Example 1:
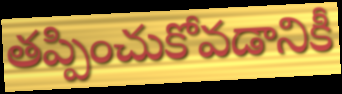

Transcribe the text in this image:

తప్పించుకోవడానికీ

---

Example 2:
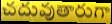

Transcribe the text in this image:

చదువుతారుగా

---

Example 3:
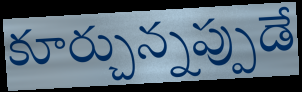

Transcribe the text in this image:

కూర్చున్నప్పుడే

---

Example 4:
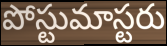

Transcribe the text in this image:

పోస్టుమాస్టరు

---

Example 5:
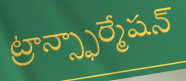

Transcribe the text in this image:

ట్రాన్స్ఫార్మేషన్